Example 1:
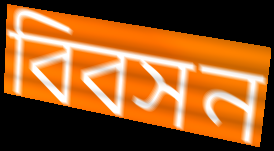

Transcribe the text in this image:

বিবসন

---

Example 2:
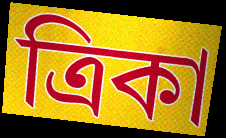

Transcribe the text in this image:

ত্রিকা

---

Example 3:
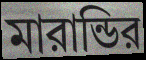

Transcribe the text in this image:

মারান্ডির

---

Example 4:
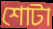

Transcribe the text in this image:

শোটা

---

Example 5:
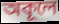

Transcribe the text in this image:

অকূলে